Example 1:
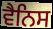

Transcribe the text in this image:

ਵੈਨਿਸ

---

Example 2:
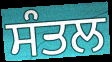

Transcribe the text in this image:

ਸੰਤਲ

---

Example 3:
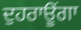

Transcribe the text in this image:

ਦੁਹਰਾਊਂਗਾ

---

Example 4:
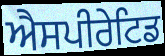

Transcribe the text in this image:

ਐਸਪੀਰੇਟਿਡ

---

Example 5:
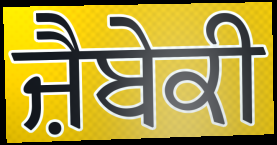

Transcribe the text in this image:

ਜ਼ੈਬੇਕੀ